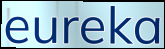
eureka